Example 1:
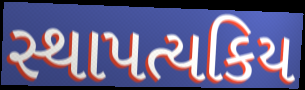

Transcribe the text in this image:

સ્થાપત્યકિય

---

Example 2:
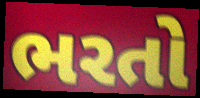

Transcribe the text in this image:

ભરતો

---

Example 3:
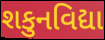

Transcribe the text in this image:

શકુનવિદ્યા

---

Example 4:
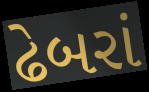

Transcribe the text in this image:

ઢેબરાં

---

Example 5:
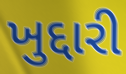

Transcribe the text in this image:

ખુદ્દારી